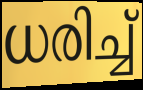
ധരിച്ച്